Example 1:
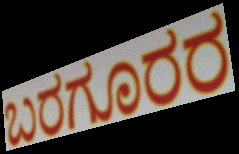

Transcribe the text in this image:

ಬರಗೂರರ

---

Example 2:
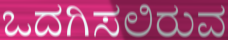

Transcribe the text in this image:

ಒದಗಿಸಲಿರುವ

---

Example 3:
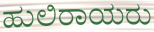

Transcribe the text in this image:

ಹುಲಿರಾಯರು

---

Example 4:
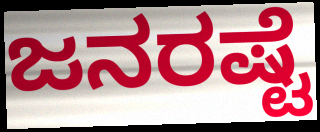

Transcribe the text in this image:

ಜನರಷ್ಟೆ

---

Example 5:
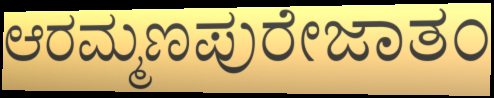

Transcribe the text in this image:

ಆರಮ್ಮಣಪುರೇಜಾತಂ